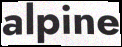
alpine